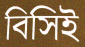
বিসিই